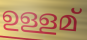
ഉള്ളമ്